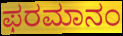
ಫರಮಾನಂ